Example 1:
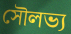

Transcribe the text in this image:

সৌলভ্য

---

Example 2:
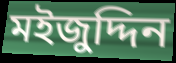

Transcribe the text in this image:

মইজুদ্দিন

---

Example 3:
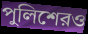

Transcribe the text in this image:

পুলিশেরও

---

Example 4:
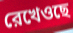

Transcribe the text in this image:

রেখেওছে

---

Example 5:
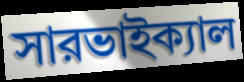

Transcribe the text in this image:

সারভাইক্যাল